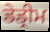
ਡੇਡ੍ਰੀਮ